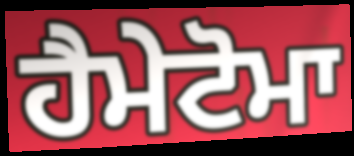
ਹੈਮੇਟੋਮਾ